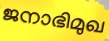
ജനാഭിമുഖ